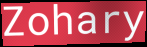
Zohary